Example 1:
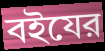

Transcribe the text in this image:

বইযের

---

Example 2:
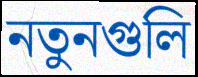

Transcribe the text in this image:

নতুনগুলি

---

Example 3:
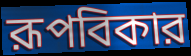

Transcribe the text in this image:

রূপবিকার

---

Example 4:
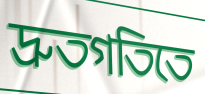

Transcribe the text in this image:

দ্রুতগতিতে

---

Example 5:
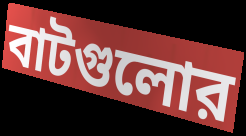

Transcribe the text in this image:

বাটগুলোর